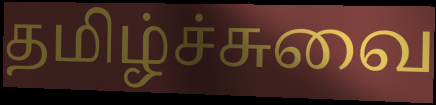
தமிழ்ச்சுவை